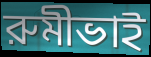
রুমীভাই